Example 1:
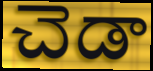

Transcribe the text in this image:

చెడా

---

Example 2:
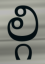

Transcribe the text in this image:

ల్గి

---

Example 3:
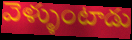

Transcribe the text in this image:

వెళ్ళుంటాడు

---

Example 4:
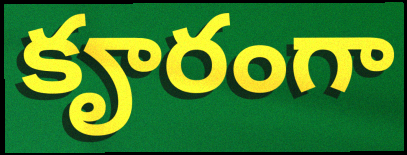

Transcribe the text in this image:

కౄరంగా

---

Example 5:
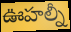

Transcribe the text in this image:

ఊహల్నీ